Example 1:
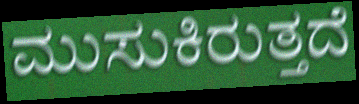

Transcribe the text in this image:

ಮುಸುಕಿರುತ್ತದೆ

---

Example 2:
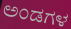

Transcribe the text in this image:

ಅಂಡಗಳ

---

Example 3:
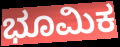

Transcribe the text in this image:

ಭೂಮಿಕ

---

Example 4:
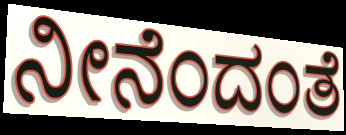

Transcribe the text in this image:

ನೀನೆಂದಂತೆ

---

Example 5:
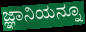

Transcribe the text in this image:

ಜ್ಞಾನಿಯನ್ನೂ